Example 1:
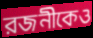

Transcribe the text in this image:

রজনীকেও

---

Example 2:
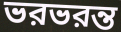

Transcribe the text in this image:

ভরভরন্ত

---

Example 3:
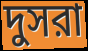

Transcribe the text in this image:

দুসরা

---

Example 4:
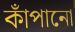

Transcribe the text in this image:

কাঁপানো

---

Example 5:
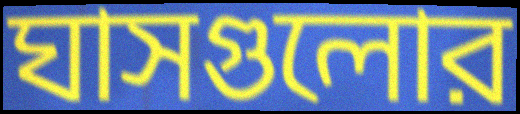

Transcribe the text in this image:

ঘাসগুলোর